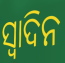
ସ୍ବାଦିନ